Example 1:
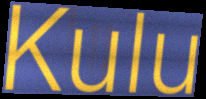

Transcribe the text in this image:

Kulu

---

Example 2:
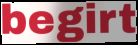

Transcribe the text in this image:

begirt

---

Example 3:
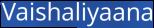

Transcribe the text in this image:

Vaishaliyaana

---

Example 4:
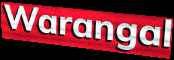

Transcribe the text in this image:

Warangal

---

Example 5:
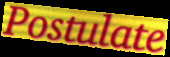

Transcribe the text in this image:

Postulate